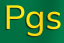
Pgs